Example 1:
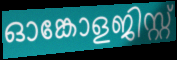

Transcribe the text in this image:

ഓങ്കോളജിസ്റ്റ്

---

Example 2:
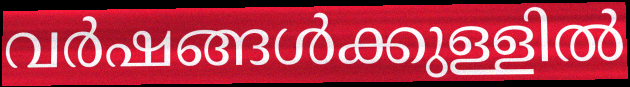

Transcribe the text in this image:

വർഷങ്ങൾക്കുള്ളിൽ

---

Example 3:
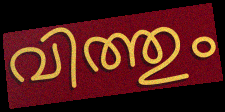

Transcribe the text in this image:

വിത്തും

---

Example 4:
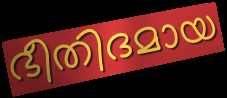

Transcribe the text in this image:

ഭീതിദമായ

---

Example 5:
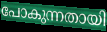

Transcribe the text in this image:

പോകുന്നതായി